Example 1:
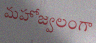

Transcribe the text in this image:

మహోజ్వలంగా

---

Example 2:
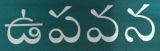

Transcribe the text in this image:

ఉపవన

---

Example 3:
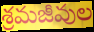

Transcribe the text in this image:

శ్రమజీవుల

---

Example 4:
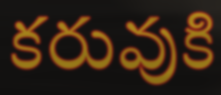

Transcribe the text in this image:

కరువుకి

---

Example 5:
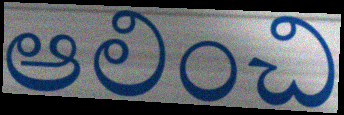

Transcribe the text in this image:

ఆలించి